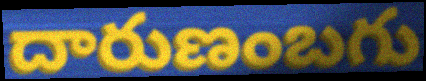
దారుణంబగు